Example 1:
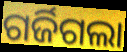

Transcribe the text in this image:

ଗର୍ଜିଗଲା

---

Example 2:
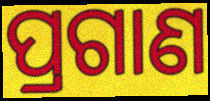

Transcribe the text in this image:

ପ୍ରଗାଣ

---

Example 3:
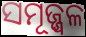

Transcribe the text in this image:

ସମୂଜ୍ଜ୍ୱଳ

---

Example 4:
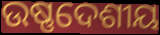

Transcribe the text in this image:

ଉଷ୍ଣଦେଶୀୟ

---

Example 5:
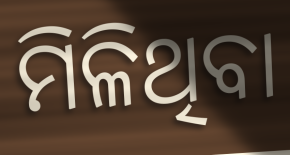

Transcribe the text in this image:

ମିଳିଥିବା